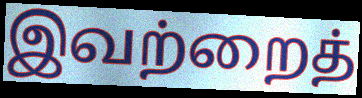
இவற்றைத்